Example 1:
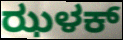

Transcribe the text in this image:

ಝಳಕ್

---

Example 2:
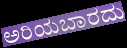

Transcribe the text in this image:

ಅರಿಯಬಾರದು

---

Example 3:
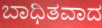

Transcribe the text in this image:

ಬಾಧಿತವಾದ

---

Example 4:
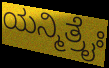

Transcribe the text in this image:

ಯನ್ಮಿತ್ರೈಃ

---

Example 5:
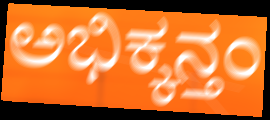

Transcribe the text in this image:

ಅಭಿಕ್ಕನ್ತಂ